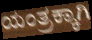
ಯಂತ್ರಕ್ಕಾಗಿ